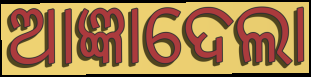
ଆଜ୍ଞାଦେଲା